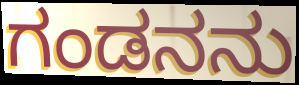
ಗಂಡನನು